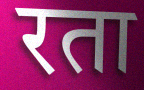
रता